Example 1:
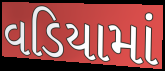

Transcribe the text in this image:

વડિયામાં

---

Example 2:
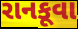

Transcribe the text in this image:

રાનકૂવા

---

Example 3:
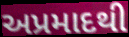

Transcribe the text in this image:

અપ્રમાદથી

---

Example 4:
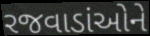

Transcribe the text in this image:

રજવાડાંઓને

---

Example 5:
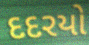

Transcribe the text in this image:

દદરયો